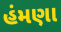
હંમણા